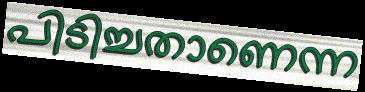
പിടിച്ചതാണെന്ന